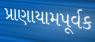
પ્રાણાયામપૂર્વક